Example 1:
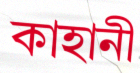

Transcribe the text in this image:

কাহানী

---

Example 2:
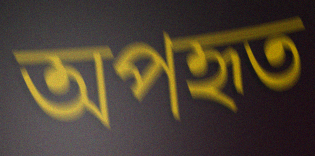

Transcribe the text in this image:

অপহৃত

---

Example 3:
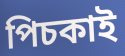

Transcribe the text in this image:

পিচকাই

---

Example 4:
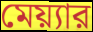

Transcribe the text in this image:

মেয়্যার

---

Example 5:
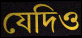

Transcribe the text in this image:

যেদিও